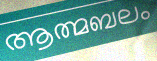
ആത്മബലം